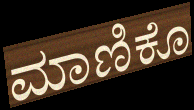
ಮಾಣಿಕೊ